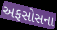
અફસોસના